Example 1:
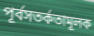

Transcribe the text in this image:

পূর্বসতর্কতামূলক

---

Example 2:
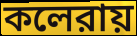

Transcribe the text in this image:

কলেরায়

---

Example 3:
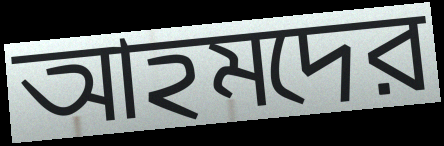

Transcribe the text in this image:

আহমদের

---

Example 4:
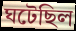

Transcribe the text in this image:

ঘটেছিল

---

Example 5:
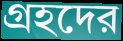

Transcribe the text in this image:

গ্রহদের